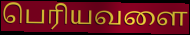
பெரியவளை